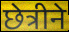
छेत्रीने